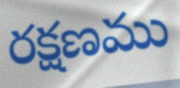
రక్షణము